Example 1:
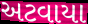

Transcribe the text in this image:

અટવાયા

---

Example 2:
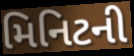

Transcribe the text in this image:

મિનિટની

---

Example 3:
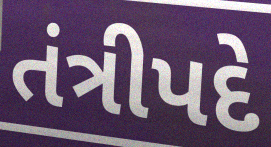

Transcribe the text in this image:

તંત્રીપદે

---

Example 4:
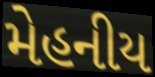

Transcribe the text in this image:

મેહનીય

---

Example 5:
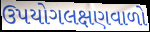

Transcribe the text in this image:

ઉપયોગલક્ષણવાળો